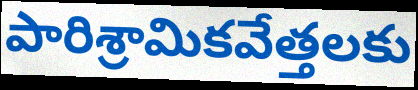
పారిశ్రామికవేత్తలకు